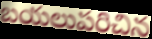
బయలుపరిచిన